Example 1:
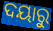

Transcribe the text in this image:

ଦୟାରୁ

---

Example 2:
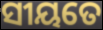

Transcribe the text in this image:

ସୀୟତେ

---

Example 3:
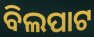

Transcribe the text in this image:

ବିଲପାଟ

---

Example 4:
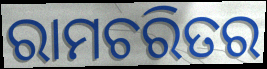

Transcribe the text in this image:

ରାମଚରିତର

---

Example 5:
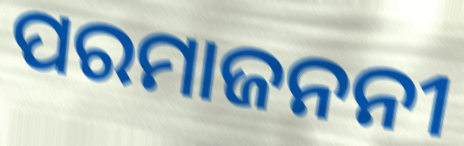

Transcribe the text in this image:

ପରମାଜନନୀ